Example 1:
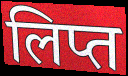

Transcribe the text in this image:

लिप्त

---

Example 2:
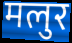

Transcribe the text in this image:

मलुर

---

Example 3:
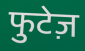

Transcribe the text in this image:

फुटेज़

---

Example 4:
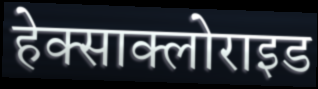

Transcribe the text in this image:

हेक्साक्लोराइड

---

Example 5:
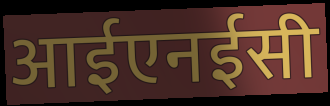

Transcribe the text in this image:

आईएनईसी